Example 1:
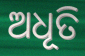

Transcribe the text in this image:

ଅଧୂତି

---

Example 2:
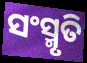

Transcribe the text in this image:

ସଂସ୍ମୃତି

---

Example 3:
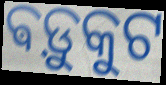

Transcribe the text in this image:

ଵଡ଼ୁକୁଟ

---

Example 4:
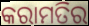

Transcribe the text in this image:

କରାମତିର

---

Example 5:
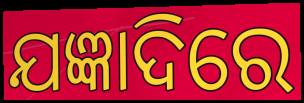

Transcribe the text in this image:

ଯଜ୍ଞାଦିରେ